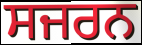
ਸਜਰਨ